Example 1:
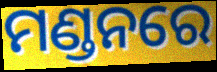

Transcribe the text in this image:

ମଣ୍ଡନରେ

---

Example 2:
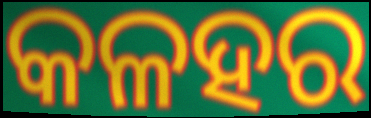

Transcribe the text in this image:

କଳହର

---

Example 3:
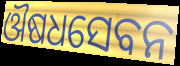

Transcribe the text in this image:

ଔଷଧସେବନ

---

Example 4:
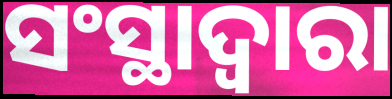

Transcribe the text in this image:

ସଂସ୍ଥାଦ୍ୱାରା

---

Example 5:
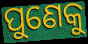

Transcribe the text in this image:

ପୁଣେକୁ